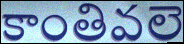
కాంతివలె